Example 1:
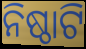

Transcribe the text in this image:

ନିଷ୍ଠାଟି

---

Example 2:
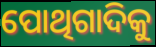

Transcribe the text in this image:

ପୋଥିଗାଦିକୁ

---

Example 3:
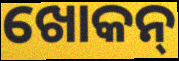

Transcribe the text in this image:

ଖୋକନ୍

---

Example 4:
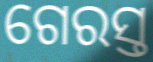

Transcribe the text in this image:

ଗେରସ୍ତ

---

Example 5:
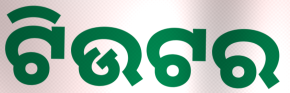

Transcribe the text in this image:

ଟିଉଟର